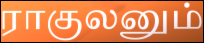
ராகுலனும்